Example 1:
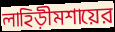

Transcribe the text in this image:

লাহিড়ীমশায়ের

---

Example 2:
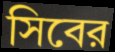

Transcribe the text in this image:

সিবের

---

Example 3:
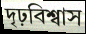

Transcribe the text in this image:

দৃঢ়বিশ্বাস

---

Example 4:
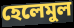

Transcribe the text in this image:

হেলেমুল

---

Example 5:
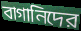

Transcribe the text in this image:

বাগানিদের